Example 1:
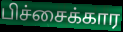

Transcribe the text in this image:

பிச்சைக்கார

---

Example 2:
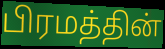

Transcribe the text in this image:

பிரமத்தின்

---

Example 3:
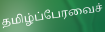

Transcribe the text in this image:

தமிழ்ப்பேரவைச்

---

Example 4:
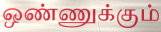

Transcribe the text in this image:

ஒண்ணுக்கும்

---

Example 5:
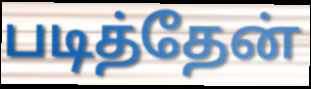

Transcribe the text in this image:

படித்தேன்